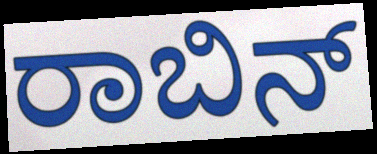
ರಾಬಿನ್